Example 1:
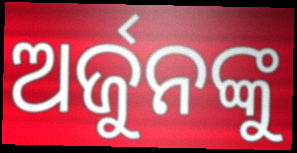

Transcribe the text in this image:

ଅର୍ଜୁନଙ୍କୁ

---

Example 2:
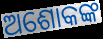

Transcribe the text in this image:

ଅଶୋକଙ୍କ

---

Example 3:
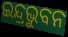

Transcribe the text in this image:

ଇନ୍ଦ୍ରଭୁବନ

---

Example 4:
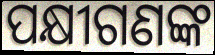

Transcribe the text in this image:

ପକ୍ଷୀଗଣଙ୍କ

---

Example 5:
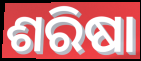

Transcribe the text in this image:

ଶରିଷା